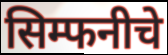
सिम्फनीचे